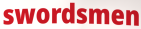
swordsmen